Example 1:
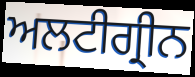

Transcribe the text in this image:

ਅਲਟੀਗ੍ਰੀਨ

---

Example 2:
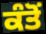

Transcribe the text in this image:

ਕੰਤੋਂ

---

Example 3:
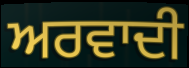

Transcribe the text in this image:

ਅਰਵਾਦੀ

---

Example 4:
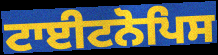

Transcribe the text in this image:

ਟਾਈਟਨੋਪਿਸ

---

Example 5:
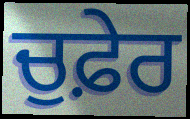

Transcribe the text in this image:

ਚੁਫ਼ੇਰ